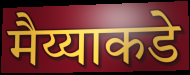
मैय्याकडे